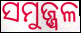
ସମୁଜ୍ଜ୍ୱଳ